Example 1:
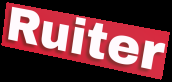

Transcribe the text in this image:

Ruiter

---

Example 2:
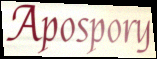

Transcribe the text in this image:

Apospory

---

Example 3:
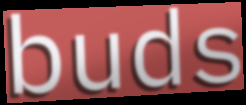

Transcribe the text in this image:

buds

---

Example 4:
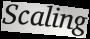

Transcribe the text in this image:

Scaling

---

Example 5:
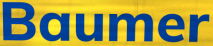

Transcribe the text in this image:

Baumer